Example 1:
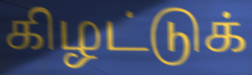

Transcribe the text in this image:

கிழட்டுக்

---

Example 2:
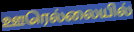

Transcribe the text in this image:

ஊரெல்லையில்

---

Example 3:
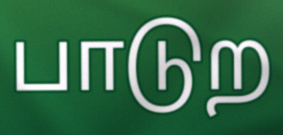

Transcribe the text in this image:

பாடுற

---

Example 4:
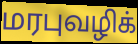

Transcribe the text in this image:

மரபுவழிக்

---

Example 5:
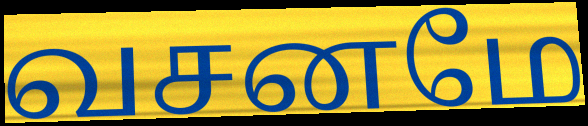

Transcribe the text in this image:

வசனமே